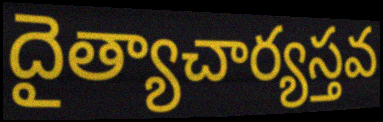
దైత్యాచార్యస్తవ